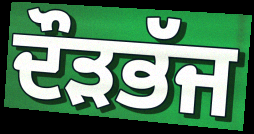
ਦੌੜਭੱਜ